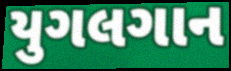
યુગલગાન